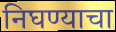
निघण्याचा